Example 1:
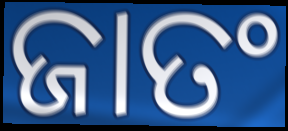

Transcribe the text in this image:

ଜାତଂ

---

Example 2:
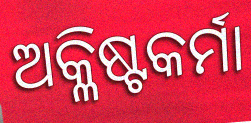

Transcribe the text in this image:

ଅକ୍ଳିଷ୍ଟକର୍ମା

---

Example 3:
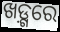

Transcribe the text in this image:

ଖଡ଼୍ଗରେ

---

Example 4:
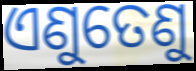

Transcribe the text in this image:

ଏଣୁତେଣୁ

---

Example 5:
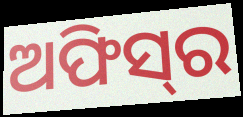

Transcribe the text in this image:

ଅଫିସ୍‌ର